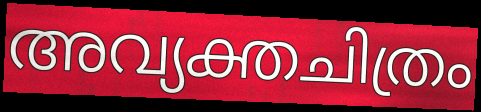
അവ്യക്തചിത്രം